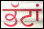
ਭੱਟਾਂ